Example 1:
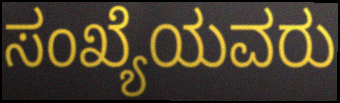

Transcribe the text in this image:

ಸಂಖ್ಯೆಯವರು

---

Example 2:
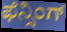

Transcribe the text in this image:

ಫೆನ್ಸಿಂಗ್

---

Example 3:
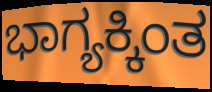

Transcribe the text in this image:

ಭಾಗ್ಯಕ್ಕಿಂತ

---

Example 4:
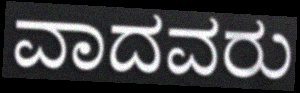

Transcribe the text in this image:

ವಾದವರು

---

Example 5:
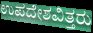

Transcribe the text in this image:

ಉಪದೇಶವಿತ್ತರು